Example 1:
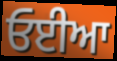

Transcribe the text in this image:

ਓਈਆ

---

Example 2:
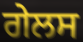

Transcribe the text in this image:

ਗੇਲਸ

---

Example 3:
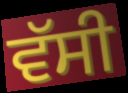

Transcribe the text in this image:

ਵੱਸੀ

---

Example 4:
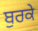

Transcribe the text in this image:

ਬੁਰਕੇ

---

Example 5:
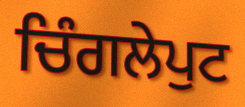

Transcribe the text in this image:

ਚਿੰਗਲੇਪੁਟ